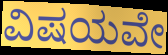
ವಿಷಯವೇ